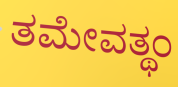
ತಮೇವತ್ಥಂ